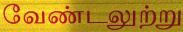
வேண்டலுற்று